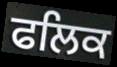
ਫਲਿਕ